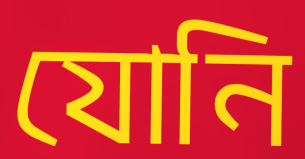
যোনি